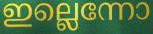
ഇല്ലെന്നോ